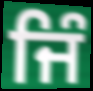
ਜਿੰ